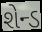
શેન્ડ